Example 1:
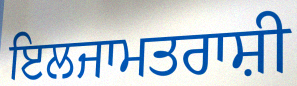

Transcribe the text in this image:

ਇਲਜਾਮਤਰਾਸ਼ੀ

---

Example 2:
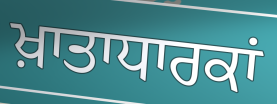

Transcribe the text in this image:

ਖ਼ਾਤਾਧਾਰਕਾਂ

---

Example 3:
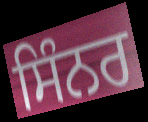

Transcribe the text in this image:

ਸਿੰਨਰ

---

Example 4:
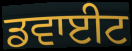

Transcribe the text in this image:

ਡਵਾਈਟ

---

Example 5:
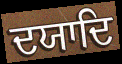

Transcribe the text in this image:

ਦਯਾਦਿ